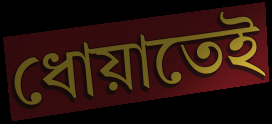
ধোয়াতেই